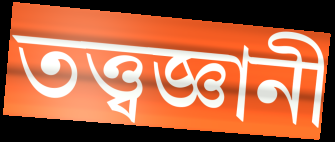
তত্ত্বজ্ঞানী